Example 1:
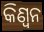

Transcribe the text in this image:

କିଣ୍ୱନ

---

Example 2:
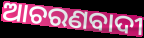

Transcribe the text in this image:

ଆଚରଣବାଦୀ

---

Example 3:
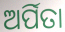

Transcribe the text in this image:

ଅର୍ପିତା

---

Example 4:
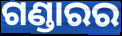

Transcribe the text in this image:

ଗଣ୍ଡାରର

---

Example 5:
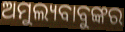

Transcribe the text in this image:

ଅମୁଲ୍ୟବାବୁଙ୍କର